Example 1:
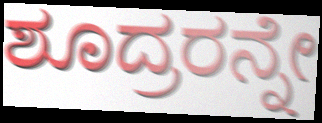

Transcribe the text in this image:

ಶೂದ್ರರನ್ನೇ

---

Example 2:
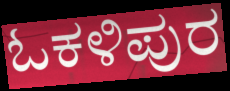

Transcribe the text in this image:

ಓಕಳಿಪುರ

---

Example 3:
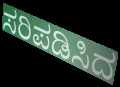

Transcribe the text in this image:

ಸರಿಪಡಿಸಿದ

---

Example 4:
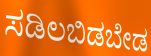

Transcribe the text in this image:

ಸಡಿಲಬಿಡಬೇಡ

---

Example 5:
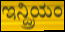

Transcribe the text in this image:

ಇನ್ದ್ರಿಯಂ